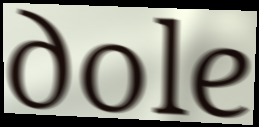
dole